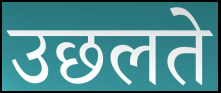
उछलते